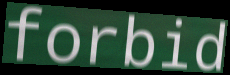
forbid